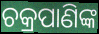
ଚକ୍ରପାଣିଙ୍କ